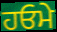
ਹਓਮੇ